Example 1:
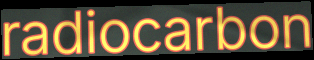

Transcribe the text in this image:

radiocarbon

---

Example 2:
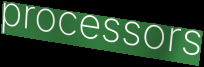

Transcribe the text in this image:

processors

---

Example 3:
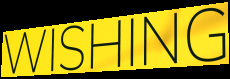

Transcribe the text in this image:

WISHING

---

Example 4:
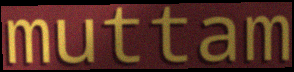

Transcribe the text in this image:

muttam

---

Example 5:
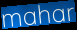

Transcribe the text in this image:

mahar